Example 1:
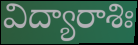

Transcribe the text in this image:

విద్యారాశిః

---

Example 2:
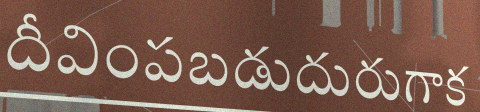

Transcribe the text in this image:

దీవింపబడుదురుగాక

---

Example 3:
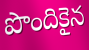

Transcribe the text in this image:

పొందికైన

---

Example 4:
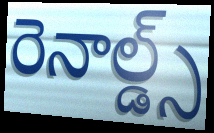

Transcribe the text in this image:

రెనాల్డ్స్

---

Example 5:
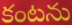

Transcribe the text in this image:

కంటను